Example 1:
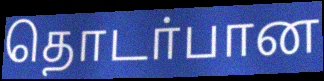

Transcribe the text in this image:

தொடர்பான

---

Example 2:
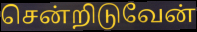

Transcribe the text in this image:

சென்றிடுவேன்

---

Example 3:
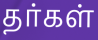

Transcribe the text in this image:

தர்கள்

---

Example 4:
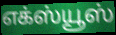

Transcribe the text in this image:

எக்ஸ்யூஸ்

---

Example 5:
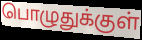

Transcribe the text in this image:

பொழுதுக்குள்